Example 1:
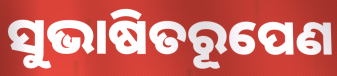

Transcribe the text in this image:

ସୁଭାଷିତରୂପେଣ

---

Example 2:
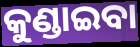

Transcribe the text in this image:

କୁଣ୍ଡାଇବା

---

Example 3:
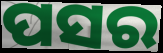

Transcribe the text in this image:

ପସର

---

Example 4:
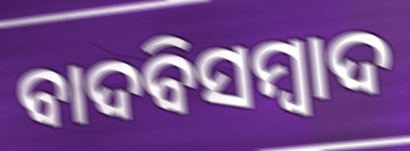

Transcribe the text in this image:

ବାଦବିସମ୍ବାଦ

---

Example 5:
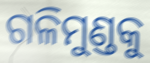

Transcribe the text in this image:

ଗଳିମୁଣ୍ଡକୁ